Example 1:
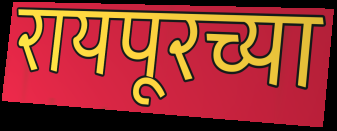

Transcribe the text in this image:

रायपूरच्या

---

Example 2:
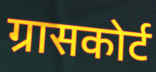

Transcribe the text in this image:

ग्रासकोर्ट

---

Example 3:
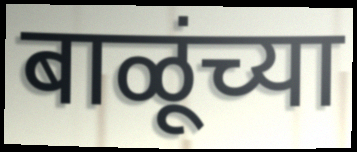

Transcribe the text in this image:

बाळूंच्या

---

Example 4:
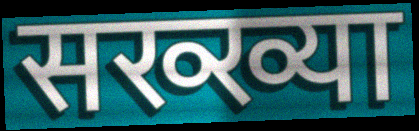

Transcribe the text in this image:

सख्ख्या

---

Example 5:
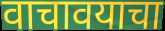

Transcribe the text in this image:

वाचावयाचा